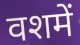
वशमें